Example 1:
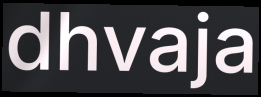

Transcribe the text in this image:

dhvaja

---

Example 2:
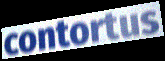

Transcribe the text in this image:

contortus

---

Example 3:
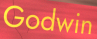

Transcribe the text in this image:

Godwin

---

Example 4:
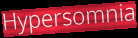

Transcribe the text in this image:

Hypersomnia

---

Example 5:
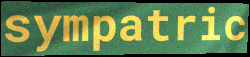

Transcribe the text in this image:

sympatric